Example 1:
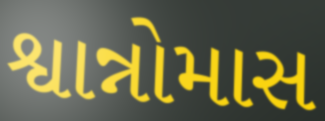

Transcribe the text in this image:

શ્વાન્નોમાસ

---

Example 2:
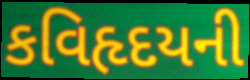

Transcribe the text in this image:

કવિહૃદયની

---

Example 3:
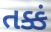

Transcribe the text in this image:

તક્કં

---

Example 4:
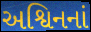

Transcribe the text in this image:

અશ્વિનનાં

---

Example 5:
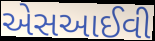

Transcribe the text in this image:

એસઆઈવી